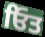
ਓਿਤ